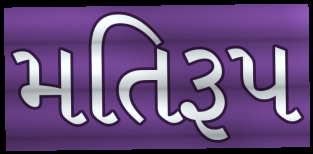
મતિરૂપ